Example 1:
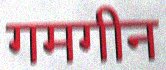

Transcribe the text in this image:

गमगीन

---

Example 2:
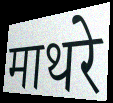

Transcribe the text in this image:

माथरे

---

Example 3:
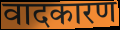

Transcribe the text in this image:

वादकारण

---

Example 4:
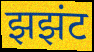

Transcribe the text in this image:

झझंट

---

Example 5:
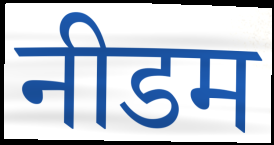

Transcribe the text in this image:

नीडम